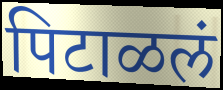
पिटाळलं